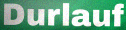
Durlauf